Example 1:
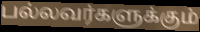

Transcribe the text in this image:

பல்லவர்களுக்கும்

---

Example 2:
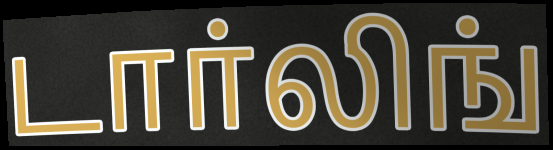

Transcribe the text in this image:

டார்லிங்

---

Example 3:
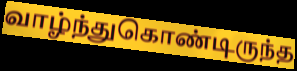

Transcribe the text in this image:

வாழ்ந்துகொண்டிருந்த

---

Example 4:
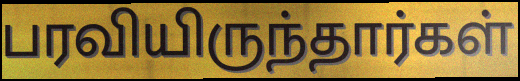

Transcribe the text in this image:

பரவியிருந்தார்கள்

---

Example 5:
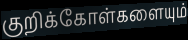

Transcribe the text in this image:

குறிக்கோள்களையும்